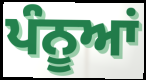
ਪੰਨੂਆਂ